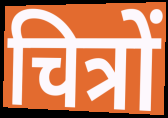
चित्रों